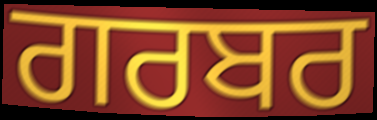
ਗਰਬਰ